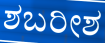
ಶಬರೀಶ